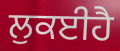
ਲੁਕਈਹੈ